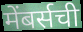
मेंबर्सची